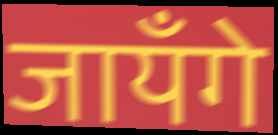
जायँगे